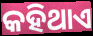
କହିଥାଏ